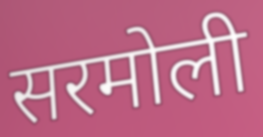
सरमोली